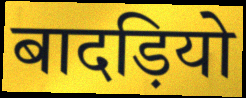
बादड़ियो